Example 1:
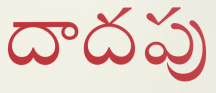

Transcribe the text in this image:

దాదపు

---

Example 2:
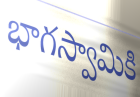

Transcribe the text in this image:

భాగస్వామికి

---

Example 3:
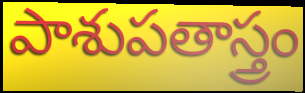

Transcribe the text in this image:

పాశుపతాస్త్రం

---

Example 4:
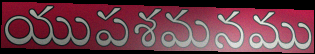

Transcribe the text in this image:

యుపశమనము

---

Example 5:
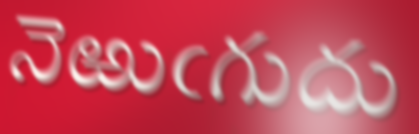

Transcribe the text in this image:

నెఱుఁగుదు